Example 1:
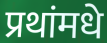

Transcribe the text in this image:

प्रथांमधे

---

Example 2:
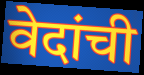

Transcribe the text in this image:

वेदांची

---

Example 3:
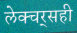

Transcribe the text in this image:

लेक्चर्सही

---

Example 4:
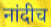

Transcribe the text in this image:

नांदीच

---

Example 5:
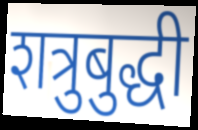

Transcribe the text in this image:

शत्रुबुद्धी